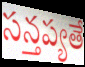
సన్తప్యతే